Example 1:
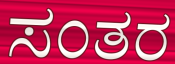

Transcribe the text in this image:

ಸಂತರ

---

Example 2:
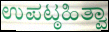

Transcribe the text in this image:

ಉಪಟ್ಠಹಿತ್ವಾ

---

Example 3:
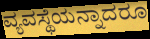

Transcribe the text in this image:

ವ್ಯವಸ್ಥೆಯನ್ನಾದರೂ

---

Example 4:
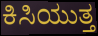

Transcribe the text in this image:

ಕಿಸಿಯುತ್ತ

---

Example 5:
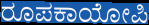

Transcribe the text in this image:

ರೂಪಕಾಯೋಪಿ